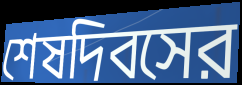
শেষদিবসের